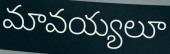
మావయ్యలూ